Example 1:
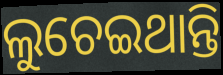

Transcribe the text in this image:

ଲୁଚେଇଥାନ୍ତି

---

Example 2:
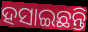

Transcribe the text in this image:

ହସାଇଛନ୍ତି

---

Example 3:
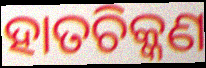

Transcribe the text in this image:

ହାତଚିକ୍କଣ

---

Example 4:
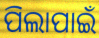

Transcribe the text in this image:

ପିଲାପାଇଁ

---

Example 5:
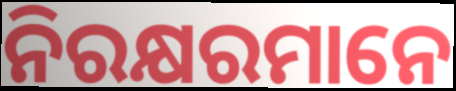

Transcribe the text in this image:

ନିରକ୍ଷରମାନେ